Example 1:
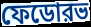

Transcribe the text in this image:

ফেডোরভ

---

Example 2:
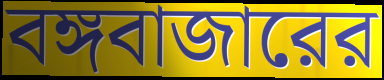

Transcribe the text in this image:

বঙ্গবাজারের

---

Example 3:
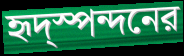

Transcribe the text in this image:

হৃদ্স্পন্দনের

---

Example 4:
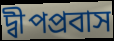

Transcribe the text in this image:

দ্বীপপ্রবাস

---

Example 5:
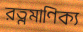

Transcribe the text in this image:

রত্নমাণিক্য